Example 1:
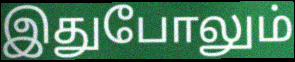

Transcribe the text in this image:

இதுபோலும்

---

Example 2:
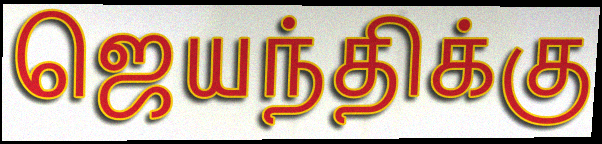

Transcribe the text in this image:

ஜெயந்திக்கு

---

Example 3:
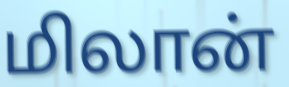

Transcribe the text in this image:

மிலான்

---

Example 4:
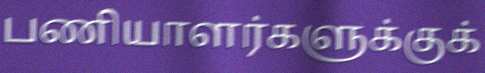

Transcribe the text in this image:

பணியாளர்களுக்குக்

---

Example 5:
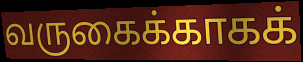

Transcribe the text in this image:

வருகைக்காகக்